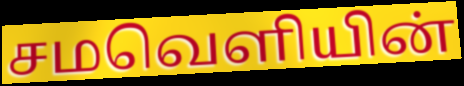
சமவெளியின்